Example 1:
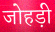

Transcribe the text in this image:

जोहड़ी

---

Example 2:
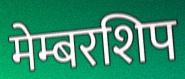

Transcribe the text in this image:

मेम्बरशिप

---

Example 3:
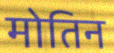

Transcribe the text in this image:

मोतिन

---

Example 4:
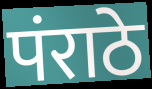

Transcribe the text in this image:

पंराठे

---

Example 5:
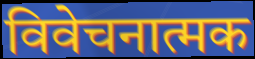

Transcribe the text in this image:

विवेचनात्मक